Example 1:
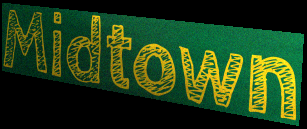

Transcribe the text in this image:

Midtown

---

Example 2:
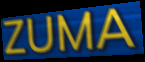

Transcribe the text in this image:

ZUMA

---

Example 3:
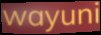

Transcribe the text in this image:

wayuni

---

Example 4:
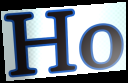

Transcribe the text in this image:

Ho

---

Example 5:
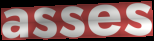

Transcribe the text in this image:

asses